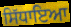
ਸਿੱਧਾਇਆ